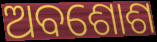
ଅବଶୋଶ